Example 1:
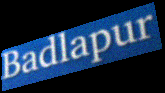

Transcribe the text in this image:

Badlapur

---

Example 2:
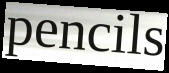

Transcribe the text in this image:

pencils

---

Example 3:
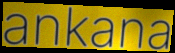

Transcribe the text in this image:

ankana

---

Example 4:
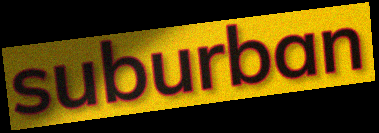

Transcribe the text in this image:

suburban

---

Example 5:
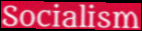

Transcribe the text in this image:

Socialism